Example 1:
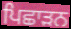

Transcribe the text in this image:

ਪਿਛਾੜਨ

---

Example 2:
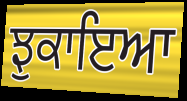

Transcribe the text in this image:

ਝੁਕਾਇਆ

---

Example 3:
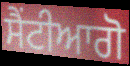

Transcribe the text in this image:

ਸੈਂਟੀਆਗੋ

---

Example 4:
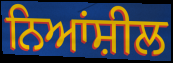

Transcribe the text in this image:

ਨਿਆਂਸ਼ੀਲ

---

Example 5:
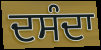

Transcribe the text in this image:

ਦਸੰਦਾ